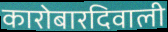
कारोबारदिवाली